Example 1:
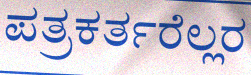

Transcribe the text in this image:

ಪತ್ರಕರ್ತರೆಲ್ಲರ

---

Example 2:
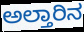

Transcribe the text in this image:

ಅಲ್ತಾರಿನ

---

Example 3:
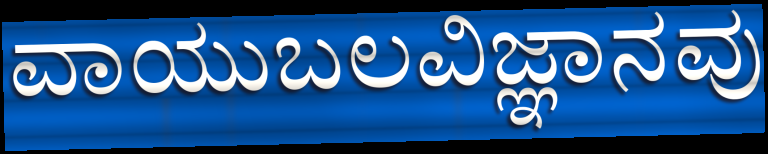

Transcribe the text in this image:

ವಾಯುಬಲವಿಜ್ಞಾನವು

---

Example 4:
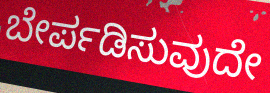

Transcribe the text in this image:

ಬೇರ್ಪಡಿಸುವುದೇ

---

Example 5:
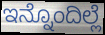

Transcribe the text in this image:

ಇನ್ನೊಂದಿಲ್ಲೆ